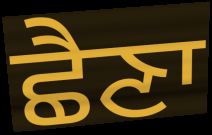
ਛੈਣਾ